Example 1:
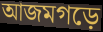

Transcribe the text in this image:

আজমগড়ে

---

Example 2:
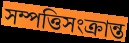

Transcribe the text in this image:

সম্পত্তিসংক্রান্ত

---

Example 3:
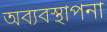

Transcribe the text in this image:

অব্যবস্থাপনা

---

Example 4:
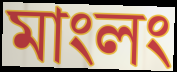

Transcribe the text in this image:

মাংলং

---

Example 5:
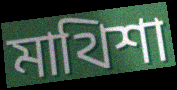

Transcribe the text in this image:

মাথিশা